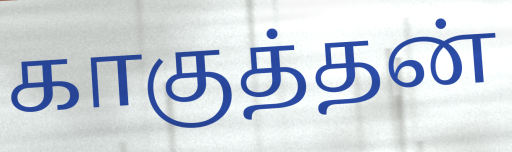
காகுத்தன்